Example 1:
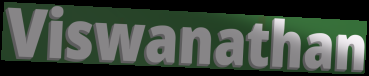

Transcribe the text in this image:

Viswanathan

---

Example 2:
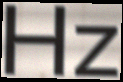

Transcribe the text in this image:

Hz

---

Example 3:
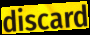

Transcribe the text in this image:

discard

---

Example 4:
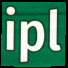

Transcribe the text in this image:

ipl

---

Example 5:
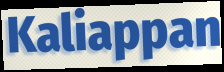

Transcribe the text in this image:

Kaliappan